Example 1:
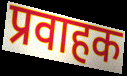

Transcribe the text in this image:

प्रवाहक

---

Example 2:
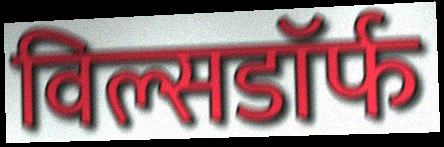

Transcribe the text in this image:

विल्सडॉर्फ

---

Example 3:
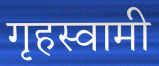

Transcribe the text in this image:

गृहस्वामी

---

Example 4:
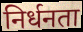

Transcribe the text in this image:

निर्धनता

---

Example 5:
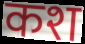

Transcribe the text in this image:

कश